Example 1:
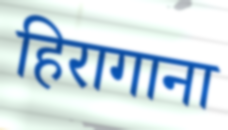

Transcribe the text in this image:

हिरागाना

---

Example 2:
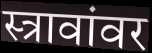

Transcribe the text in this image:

स्त्रावांवर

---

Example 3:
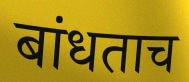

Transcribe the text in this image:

बांधताच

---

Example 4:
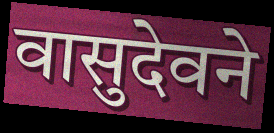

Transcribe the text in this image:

वासुदेवने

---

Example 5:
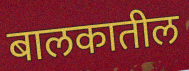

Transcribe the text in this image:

बालकातील